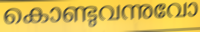
കൊണ്ടുവന്നുവോ